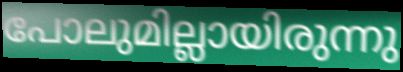
പോലുമില്ലായിരുന്നു